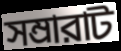
সম্রারাট